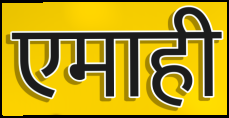
एमाही